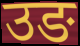
उङ